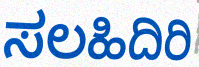
ಸಲಹಿದಿರಿ